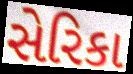
સેરિકા